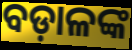
ବଡ଼ାଳଙ୍କ